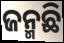
ଜନ୍ମଛି